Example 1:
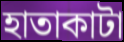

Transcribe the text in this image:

হাতাকাটা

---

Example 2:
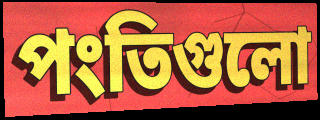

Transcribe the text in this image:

পংতিগুলো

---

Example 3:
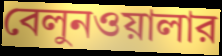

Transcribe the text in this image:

বেলুনওয়ালার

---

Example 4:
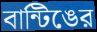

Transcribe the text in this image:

বান্টিঙের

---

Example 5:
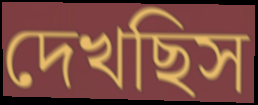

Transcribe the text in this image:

দেখছিস